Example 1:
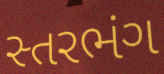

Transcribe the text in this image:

સ્તરભંગ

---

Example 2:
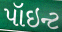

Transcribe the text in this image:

પૉઇન્ટ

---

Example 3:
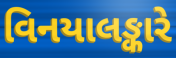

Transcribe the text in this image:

વિનયાલઙ્કારે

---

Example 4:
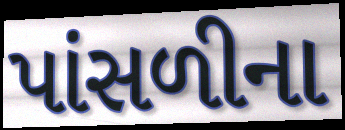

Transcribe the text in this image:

પાંસળીના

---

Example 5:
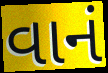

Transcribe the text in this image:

વાનં